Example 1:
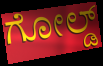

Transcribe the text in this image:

ಗೋಲ್ಡ್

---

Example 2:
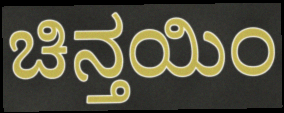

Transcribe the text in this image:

ಚಿನ್ತಯಿಂ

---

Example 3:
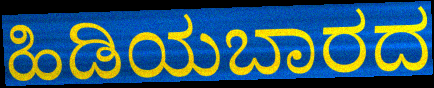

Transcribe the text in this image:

ಹಿಡಿಯಬಾರದ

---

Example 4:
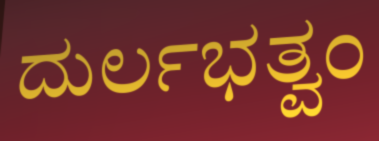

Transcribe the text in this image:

ದುರ್ಲಭತ್ವಂ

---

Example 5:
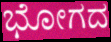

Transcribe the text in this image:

ಭೋಗದ